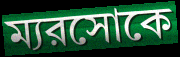
ম্যরসোকে